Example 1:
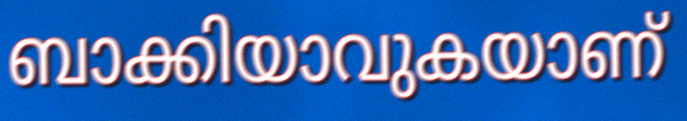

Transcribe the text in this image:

ബാക്കിയാവുകയാണ്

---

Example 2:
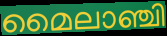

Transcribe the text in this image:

മൈലാഞ്ചി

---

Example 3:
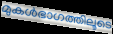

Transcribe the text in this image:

മുകൾഭാഗത്തിലൂടെ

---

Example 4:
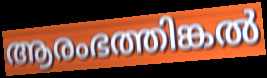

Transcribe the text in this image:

ആരംഭത്തിങ്കൽ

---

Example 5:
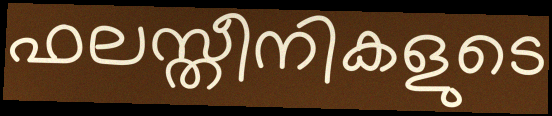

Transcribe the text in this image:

ഫലസ്തീനികളുടെ